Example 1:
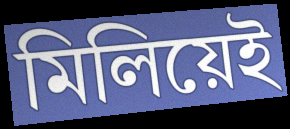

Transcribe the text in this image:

মিলিয়েই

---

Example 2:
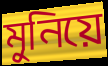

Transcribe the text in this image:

মুনিয়ে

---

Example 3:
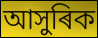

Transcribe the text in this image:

আসুৰিক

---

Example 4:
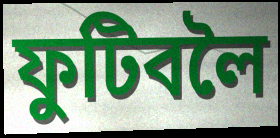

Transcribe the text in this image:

ফুটিবলৈ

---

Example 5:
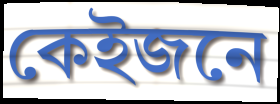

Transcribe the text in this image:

কেইজনে